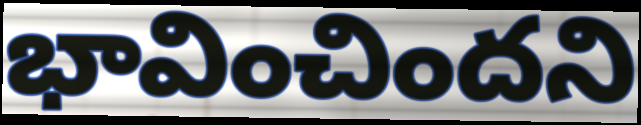
భావించిందని